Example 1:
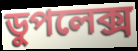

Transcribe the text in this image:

ডুপলেক্স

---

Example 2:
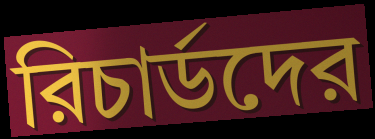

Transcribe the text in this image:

রিচার্ডদের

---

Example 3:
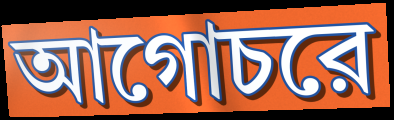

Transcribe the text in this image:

আগোচরে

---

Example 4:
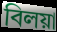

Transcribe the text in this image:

বিলয়া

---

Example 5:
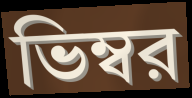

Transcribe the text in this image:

ভিম্বর